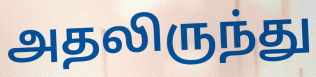
அதலிருந்து